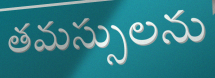
తమస్సులను